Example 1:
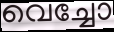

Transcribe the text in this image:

വെച്ചോ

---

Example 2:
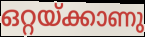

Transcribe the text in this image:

ഒറ്റയ്ക്കാണു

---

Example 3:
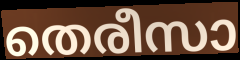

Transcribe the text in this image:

തെരീസാ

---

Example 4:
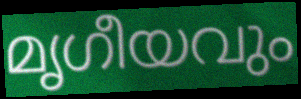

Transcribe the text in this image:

മൃഗീയവും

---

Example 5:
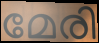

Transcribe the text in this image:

മേരി